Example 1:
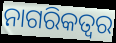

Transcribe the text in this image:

ନାଗରିକତ୍ଵର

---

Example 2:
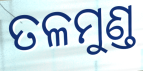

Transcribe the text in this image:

ତଳମୁଣ୍ଡ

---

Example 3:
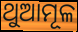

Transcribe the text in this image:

ଥୁଆମୂଳ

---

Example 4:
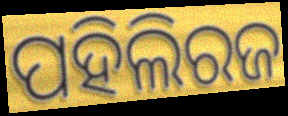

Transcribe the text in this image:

ପହିଲିରଜ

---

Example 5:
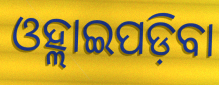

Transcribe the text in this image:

ଓହ୍ଲାଇପଡ଼ିବା